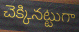
చెక్కినట్టుగా